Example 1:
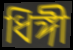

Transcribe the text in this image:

ধিঙ্গী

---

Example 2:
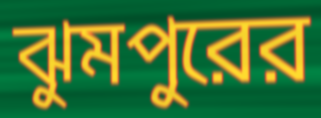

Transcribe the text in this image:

ঝুমপুরের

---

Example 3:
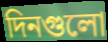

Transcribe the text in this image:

দিনগুলো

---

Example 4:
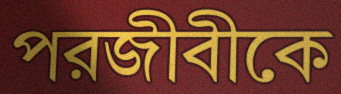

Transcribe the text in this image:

পরজীবীকে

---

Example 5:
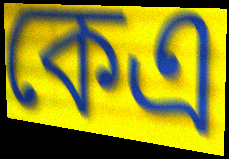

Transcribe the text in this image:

কেএ